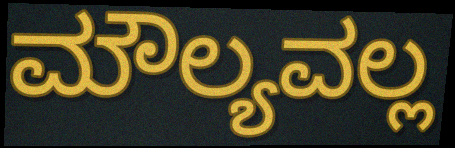
ಮೌಲ್ಯವಲ್ಲ